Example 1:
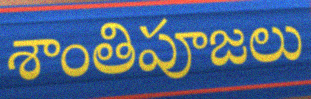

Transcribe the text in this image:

శాంతిపూజలు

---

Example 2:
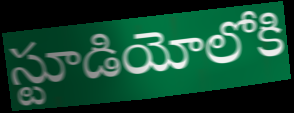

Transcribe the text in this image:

స్టూడియోలోకి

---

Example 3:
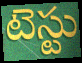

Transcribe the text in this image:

టెస్టు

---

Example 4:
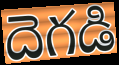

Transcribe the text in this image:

దెగడి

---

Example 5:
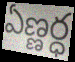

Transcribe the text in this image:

ఏణ్ణర్ధ